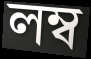
লম্ব